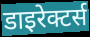
डाइरेक्टर्स